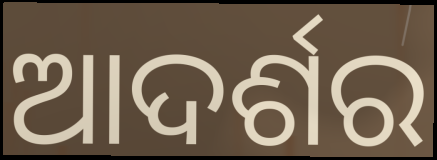
ଆଦର୍ଶର